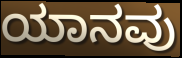
ಯಾನವು